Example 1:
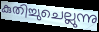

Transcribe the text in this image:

കുതിച്ചുചെല്ലുന്നു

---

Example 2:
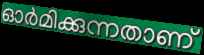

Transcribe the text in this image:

ഓർമിക്കുന്നതാണ്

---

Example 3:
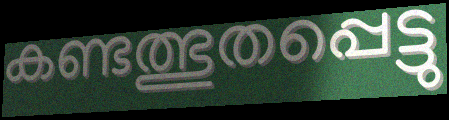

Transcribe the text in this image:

കണ്ടത്ഭുതപ്പെട്ടു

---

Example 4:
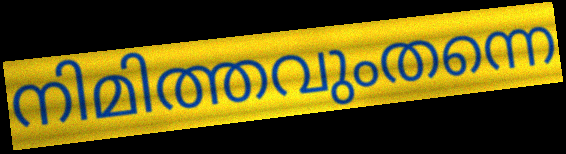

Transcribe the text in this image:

നിമിത്തവുംതന്നെ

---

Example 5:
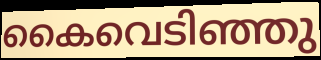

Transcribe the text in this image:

കൈവെടിഞ്ഞു